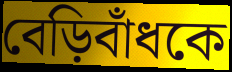
বেড়িবাঁধকে